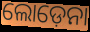
ଲୋଡ଼େନା